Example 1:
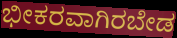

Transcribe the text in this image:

ಭೀಕರವಾಗಿರಬೇಡ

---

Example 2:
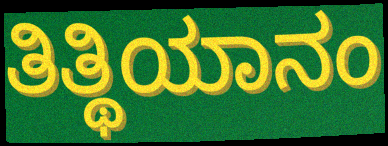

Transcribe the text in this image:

ತಿತ್ಥಿಯಾನಂ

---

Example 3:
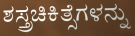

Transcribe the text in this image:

ಶಸ್ತ್ರಚಿಕಿತ್ಸೆಗಳನ್ನು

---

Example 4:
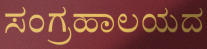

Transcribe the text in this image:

ಸಂಗ್ರಹಾಲಯದ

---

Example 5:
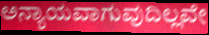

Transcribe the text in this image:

ಅನ್ಯಾಯವಾಗುವುದಿಲ್ಲವೇ